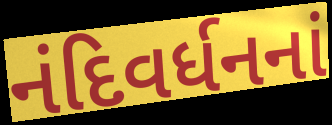
નંદિવર્ધનનાં